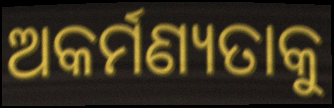
ଅକର୍ମଣ୍ୟତାକୁ